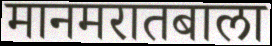
मानमरातबाला